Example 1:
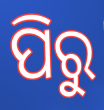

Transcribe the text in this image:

ପିରୁ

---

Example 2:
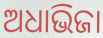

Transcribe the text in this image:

ଅଧାଭିଜା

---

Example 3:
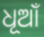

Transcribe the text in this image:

ଧୂଆଁ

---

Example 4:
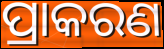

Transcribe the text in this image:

ପ୍ରାକରଣ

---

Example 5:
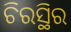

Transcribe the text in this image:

ଚିରସ୍ଥିର